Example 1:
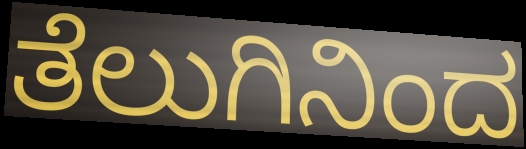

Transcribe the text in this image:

ತೆಲುಗಿನಿಂದ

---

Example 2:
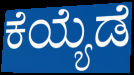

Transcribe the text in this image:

ಕೆಯ್ಯೆಡೆ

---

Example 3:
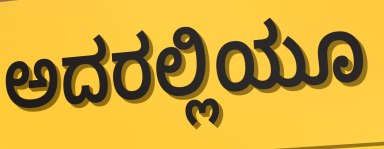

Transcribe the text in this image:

ಅದರಲ್ಲಿಯೂ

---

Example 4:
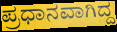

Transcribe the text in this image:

ಪ್ರಧಾನವಾಗಿದ್ದ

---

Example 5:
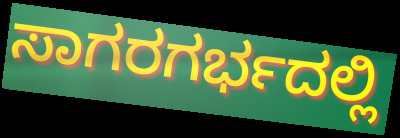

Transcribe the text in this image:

ಸಾಗರಗರ್ಭದಲ್ಲಿ